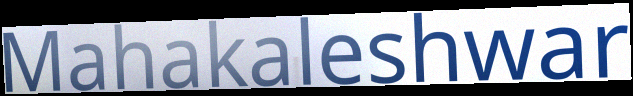
Mahakaleshwar